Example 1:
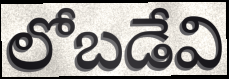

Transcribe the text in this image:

లోబడేవి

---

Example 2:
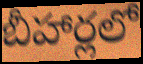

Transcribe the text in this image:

బీహార్లలో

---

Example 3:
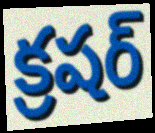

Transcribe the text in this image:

క్రషర్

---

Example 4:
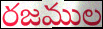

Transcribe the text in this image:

రజముల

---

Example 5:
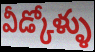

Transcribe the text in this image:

వీడ్కోళ్ళు